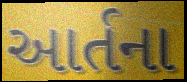
આર્તના